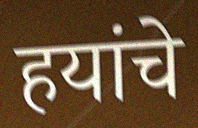
हयांचे